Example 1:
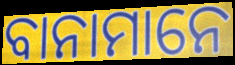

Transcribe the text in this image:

ବାନାମାନେ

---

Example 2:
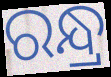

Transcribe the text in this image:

ରନ୍ଧ୍ର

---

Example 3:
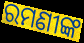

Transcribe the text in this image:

ରମଣୀଙ୍କ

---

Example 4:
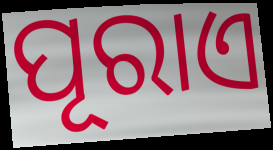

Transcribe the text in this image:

ପୂରାଏ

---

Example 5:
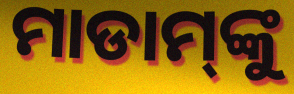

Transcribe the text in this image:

ମାଡାମ୍‌ଙ୍କୁ